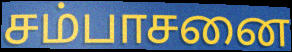
சம்பாசனை